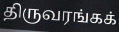
திருவரங்கக்